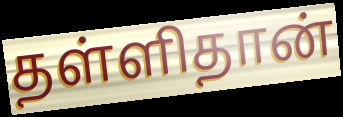
தள்ளிதான்